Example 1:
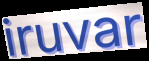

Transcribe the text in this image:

iruvar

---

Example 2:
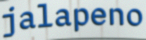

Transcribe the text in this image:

jalapeno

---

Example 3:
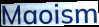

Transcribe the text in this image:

Maoism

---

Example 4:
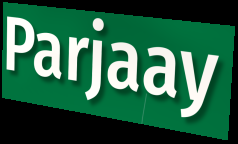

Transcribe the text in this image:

Parjaay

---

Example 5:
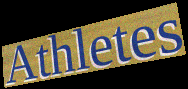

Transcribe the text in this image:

Athletes